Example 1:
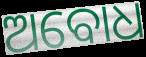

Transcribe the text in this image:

ଅବୋଧ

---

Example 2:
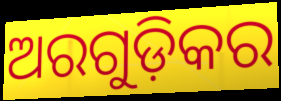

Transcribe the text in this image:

ଅରଗୁଡ଼ିକର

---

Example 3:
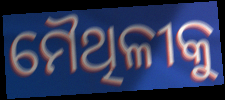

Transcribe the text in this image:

ମୈଥିଳୀକୁ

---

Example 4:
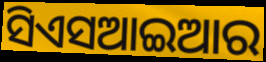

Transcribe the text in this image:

ସିଏସଆଇଆର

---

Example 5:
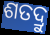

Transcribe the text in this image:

ଶତଦ୍ରୁ